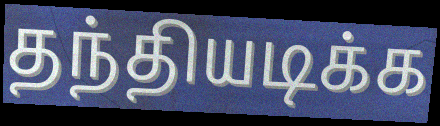
தந்தியடிக்க